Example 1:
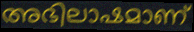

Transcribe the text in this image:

അഭിലാഷമാണ്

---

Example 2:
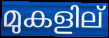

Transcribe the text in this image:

മുകളില്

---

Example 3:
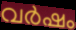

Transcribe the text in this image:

വർഷം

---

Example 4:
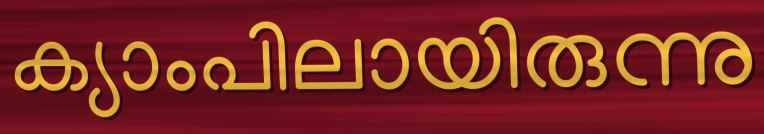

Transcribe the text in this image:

ക്യാംപിലായിരുന്നു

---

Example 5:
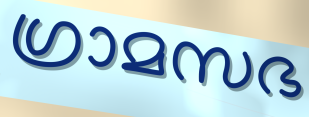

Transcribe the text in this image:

ഗ്രാമസഭ